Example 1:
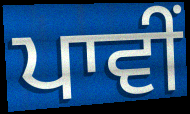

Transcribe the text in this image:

ਪਾਵੀਂ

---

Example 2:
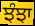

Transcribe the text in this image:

ਝੰਝਾ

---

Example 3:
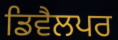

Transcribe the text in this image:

ਡਿਵੈਲਪਰ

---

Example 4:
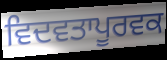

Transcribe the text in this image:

ਵਿਦਵਤਾਪੂਰਵਕ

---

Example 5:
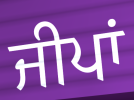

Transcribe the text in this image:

ਜੀਪਾਂ